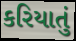
કરિયાતું